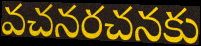
వచనరచనకు